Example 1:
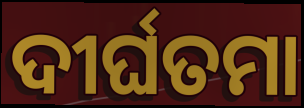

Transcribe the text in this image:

ଦୀର୍ଘତମା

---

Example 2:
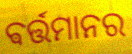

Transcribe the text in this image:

ଵର୍ତ୍ତମାନର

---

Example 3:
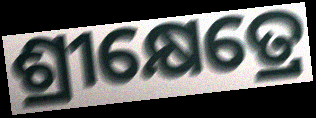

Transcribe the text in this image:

ଶ୍ରୀକ୍ଷେତ୍ରେ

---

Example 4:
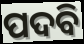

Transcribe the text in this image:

ପଦବି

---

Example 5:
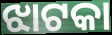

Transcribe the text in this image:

ଝାଟକା